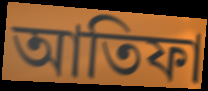
আতিফা